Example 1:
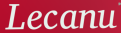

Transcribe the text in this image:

Lecanu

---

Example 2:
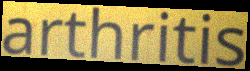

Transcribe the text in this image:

arthritis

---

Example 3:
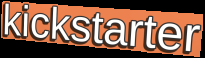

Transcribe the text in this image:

kickstarter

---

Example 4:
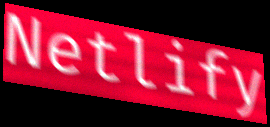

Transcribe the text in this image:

Netlify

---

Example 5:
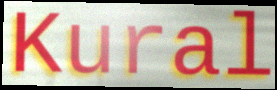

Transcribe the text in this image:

Kural